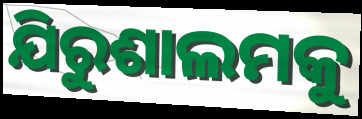
ଯିରୁଶାଲମକୁ